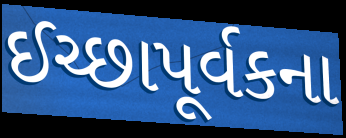
ઈચ્છાપૂર્વકના